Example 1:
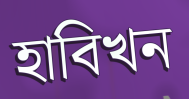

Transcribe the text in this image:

হাবিখন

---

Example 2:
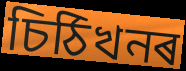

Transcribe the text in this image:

চিঠিখনৰ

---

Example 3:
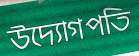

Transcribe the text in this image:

উদ্যোগপতি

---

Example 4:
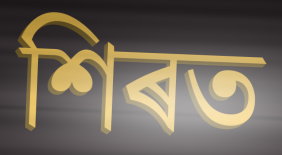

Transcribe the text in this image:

শিৰত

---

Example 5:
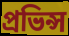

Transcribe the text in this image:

প্ৰভিন্স